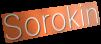
Sorokin